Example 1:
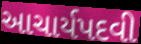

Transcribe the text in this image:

આચાર્યપદવી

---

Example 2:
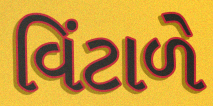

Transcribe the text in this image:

વિંટાળે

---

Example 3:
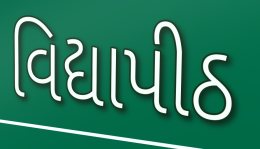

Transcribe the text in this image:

વિદ્યાપીઠ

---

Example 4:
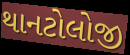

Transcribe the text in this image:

થાનટોલોજી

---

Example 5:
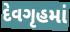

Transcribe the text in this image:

દેવગૃહમાં